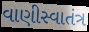
વાણીસ્વાતંત્ર